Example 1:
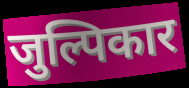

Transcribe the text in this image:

जुल्पिकार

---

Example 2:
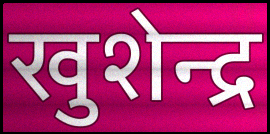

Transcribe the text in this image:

खुशेन्द्र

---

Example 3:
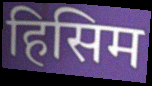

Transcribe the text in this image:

हिसिम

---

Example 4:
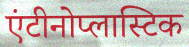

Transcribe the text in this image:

एंटीनोप्लास्टिक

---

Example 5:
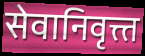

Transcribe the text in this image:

सेवानिवृत्त्त